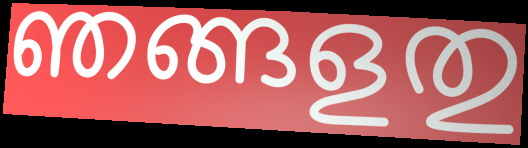
ഞങ്ങളതു